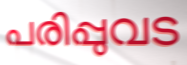
പരിപ്പുവട